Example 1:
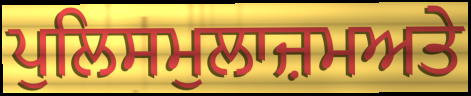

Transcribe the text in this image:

ਪੁਲਿਸਮੁਲਾਜ਼ਮਅਤੇ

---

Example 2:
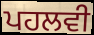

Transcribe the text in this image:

ਪਹਲਵੀ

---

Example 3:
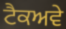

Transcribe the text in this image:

ਟੈਕਅਵੇ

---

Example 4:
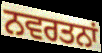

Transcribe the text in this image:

ਨਵਰਤਨਾਂ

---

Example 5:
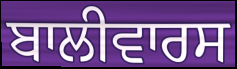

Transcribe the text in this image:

ਬਾਲੀਵਾਰਸ